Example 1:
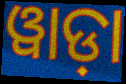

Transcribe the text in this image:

ୱାଡ଼ା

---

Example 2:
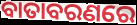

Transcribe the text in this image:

ବାତାବରଣରେ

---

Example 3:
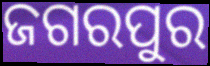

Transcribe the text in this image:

ଜଗରପୁର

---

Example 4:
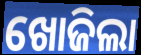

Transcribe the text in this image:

ଖୋଜିଲା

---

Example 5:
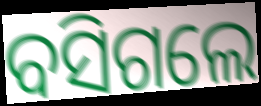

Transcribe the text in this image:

ବସିଗଲେ